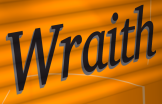
Wraith